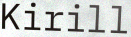
Kirill